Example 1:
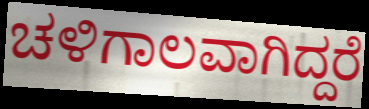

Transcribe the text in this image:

ಚಳಿಗಾಲವಾಗಿದ್ದರೆ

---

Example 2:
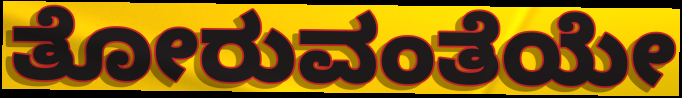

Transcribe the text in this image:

ತೋರುವಂತೆಯೇ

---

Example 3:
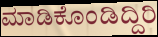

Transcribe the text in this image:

ಮಾಡಿಕೊಂಡಿದ್ದಿರಿ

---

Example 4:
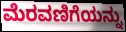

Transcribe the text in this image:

ಮೆರವಣಿಗೆಯನ್ನು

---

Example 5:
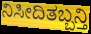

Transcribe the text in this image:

ನಿಸೀದಿತಬ್ಬನ್ತಿ